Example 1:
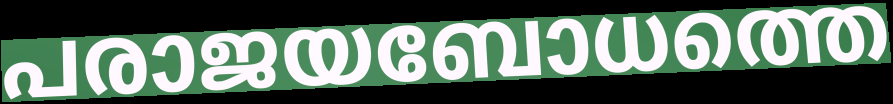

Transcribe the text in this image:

പരാജയബോധത്തെ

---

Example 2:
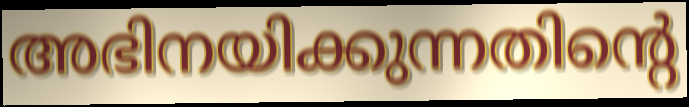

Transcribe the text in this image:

അഭിനയിക്കുന്നതിന്റെ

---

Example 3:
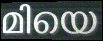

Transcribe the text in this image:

മിയെ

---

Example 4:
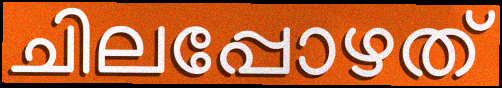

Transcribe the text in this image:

ചിലപ്പോഴത്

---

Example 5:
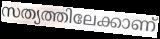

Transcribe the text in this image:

സത്യത്തിലേക്കാണ്